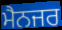
ਮੈਨਜਰ